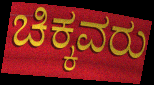
ಚಿಕ್ಕವರು